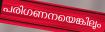
പരിഗണനയെങ്കിലും